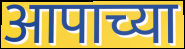
आपाच्या